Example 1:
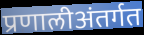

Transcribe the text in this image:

प्रणालीअंतर्गत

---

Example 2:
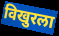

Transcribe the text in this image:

विखुरला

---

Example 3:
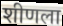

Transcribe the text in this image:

शीणला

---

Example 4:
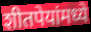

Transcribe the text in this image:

शीतपेयांमध्ये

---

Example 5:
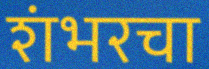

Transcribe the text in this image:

शंभरचा